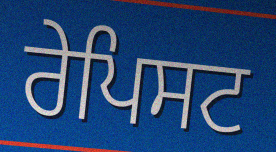
ਰੇਪਿਸਟ